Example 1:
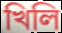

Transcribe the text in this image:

খিলি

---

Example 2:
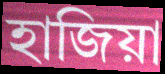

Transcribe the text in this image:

হাজিয়া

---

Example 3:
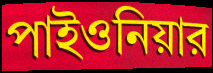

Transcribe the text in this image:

পাইওনিয়ার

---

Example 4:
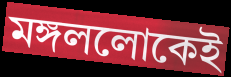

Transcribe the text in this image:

মঙ্গললোকেই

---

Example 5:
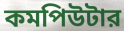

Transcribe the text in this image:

কমপিউটার